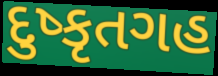
દુષ્કૃતગહ